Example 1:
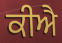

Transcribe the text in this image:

ਕੀਐ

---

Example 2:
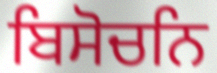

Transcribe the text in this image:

ਬਿਸੋਚਨਿ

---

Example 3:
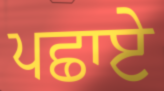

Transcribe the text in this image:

ਪਛਾਏ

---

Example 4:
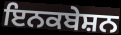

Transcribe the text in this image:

ਇਨਕਬੇਸ਼ਨ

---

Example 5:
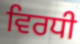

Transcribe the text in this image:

ਵਿਰਧੀ